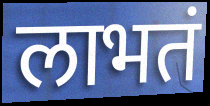
लाभतं